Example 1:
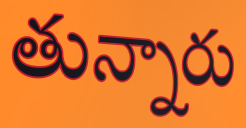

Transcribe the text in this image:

తున్నారు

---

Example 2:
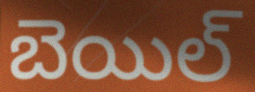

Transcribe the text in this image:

బెయిల్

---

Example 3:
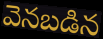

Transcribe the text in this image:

వెనబడిన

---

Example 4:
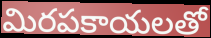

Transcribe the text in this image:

మిరపకాయలతో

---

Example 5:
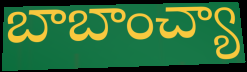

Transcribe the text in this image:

బాబాంచ్యా